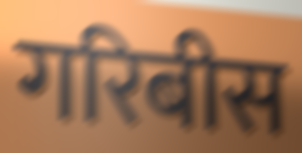
गरिबीस